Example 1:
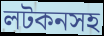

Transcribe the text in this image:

লটকনসহ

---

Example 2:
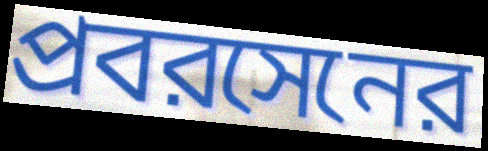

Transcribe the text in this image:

প্রবরসেনের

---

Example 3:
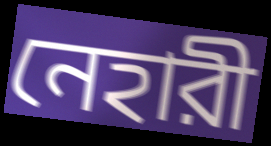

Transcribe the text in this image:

নেহারী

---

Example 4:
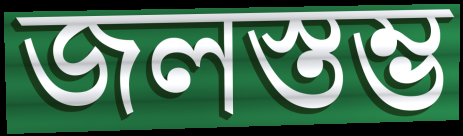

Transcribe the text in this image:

জলস্তম্ভ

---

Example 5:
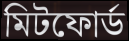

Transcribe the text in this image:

মিটফোর্ড